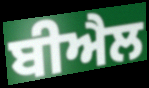
ਬੀਐਲ